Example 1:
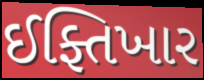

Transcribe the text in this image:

ઈફ્તિખાર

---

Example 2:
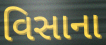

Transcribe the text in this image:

વિસાના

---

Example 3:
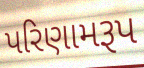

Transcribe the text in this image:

પરિણામરૂપ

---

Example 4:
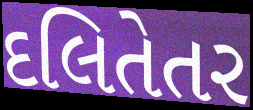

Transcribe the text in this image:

દલિતેતર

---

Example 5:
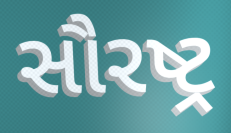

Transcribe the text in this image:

સૌરષ્ટ્ર